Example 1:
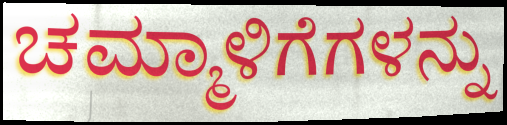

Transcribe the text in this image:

ಚಮ್ಮಾಳಿಗೆಗಳನ್ನು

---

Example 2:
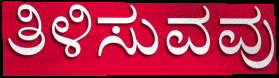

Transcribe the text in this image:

ತಿಳಿಸುವವು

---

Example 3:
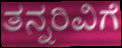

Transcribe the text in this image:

ತನ್ನರಿವಿಗೆ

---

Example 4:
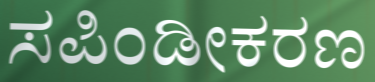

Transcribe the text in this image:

ಸಪಿಂಡೀಕರಣ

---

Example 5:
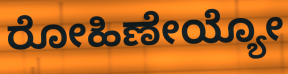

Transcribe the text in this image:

ರೋಹಿಣೇಯ್ಯೋ